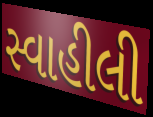
સ્વાહીલી